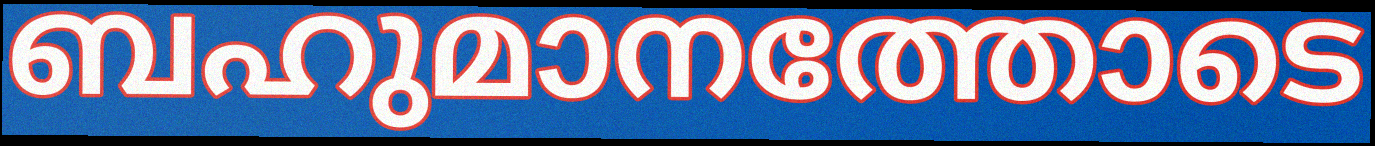
ബഹുമാനത്തോടെ